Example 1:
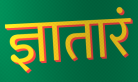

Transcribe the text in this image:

ज्ञातारं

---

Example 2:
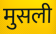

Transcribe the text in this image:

मुसली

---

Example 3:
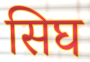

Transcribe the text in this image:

सिघ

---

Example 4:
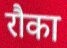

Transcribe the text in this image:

रौका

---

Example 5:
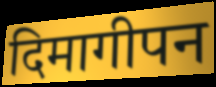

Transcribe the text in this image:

दिमागीपन